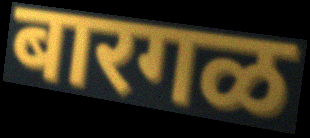
बारगळ